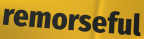
remorseful